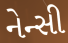
નેન્સી